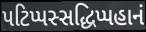
પટિપ્પસ્સદ્ધિપ્પહાનં